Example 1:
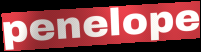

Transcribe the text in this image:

penelope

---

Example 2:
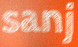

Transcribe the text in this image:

sanj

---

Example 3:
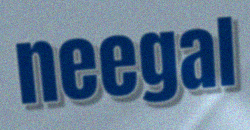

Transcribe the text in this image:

neegal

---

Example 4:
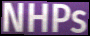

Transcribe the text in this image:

NHPs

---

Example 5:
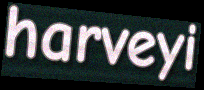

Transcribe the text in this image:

harveyi